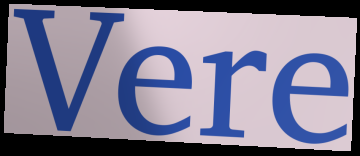
Vere